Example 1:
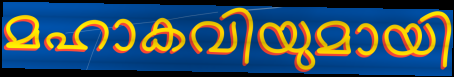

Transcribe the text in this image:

മഹാകവിയുമായി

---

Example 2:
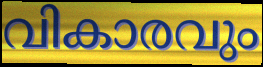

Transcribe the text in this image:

വികാരവും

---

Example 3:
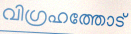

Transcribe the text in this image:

വിഗ്രഹത്തോട്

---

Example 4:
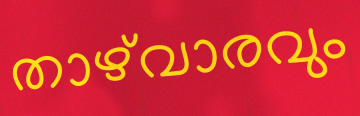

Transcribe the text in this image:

താഴ്‌വാരവും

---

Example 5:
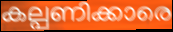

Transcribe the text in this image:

കല്പണിക്കാരെ